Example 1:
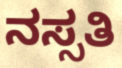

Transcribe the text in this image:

ನಸ್ಸತಿ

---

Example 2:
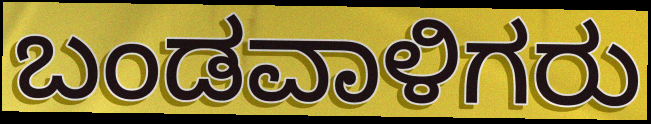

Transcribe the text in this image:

ಬಂಡವಾಳಿಗರು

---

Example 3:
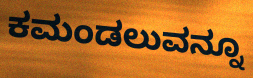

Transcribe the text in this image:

ಕಮಂಡಲುವನ್ನೂ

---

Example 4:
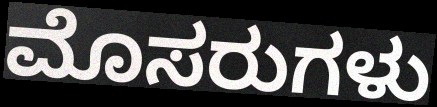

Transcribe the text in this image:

ಮೊಸರುಗಳು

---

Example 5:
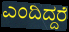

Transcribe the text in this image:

ಎಂದಿದ್ದರೆ